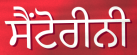
ਸੈਂਟੋਰੀਨੀ